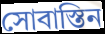
সোবাস্তিন